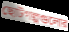
ছোটগল্পগুলোর